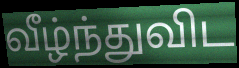
வீழ்ந்துவிட